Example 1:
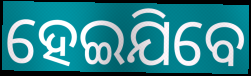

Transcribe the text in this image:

ହେଇଯିବେ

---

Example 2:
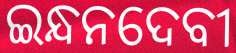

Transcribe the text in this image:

ଇନ୍ଧନଦେବୀ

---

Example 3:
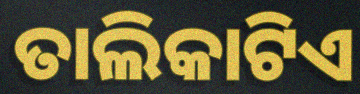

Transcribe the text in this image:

ତାଲିକାଟିଏ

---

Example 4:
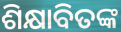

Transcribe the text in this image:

ଶିକ୍ଷାବିତଙ୍କ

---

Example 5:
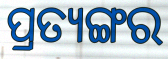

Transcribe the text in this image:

ପ୍ରତ୍ୟଙ୍ଗର